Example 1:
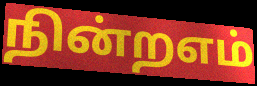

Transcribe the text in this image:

நின்றஎம்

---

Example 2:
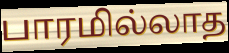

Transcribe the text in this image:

பாரமில்லாத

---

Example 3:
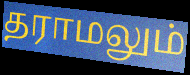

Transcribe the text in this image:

தராமலும்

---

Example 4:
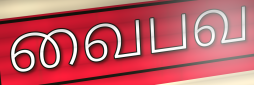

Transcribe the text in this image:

வைபவ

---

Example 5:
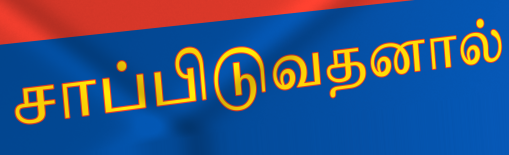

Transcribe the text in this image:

சாப்பிடுவதனால்